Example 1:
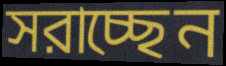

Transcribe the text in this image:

সরাচ্ছেন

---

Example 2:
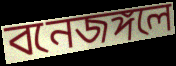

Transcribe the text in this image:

বনেজঙ্গলে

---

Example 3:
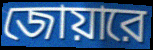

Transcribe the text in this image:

জোয়ারে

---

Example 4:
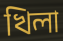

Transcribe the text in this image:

খিলা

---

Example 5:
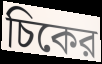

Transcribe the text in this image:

চিকের